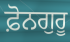
ਫ਼ੋਨਗੁਰੂ